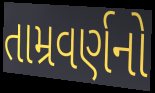
તામ્રવર્ણનો